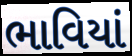
ભાવિયાં